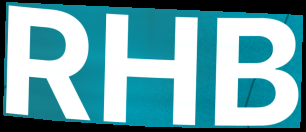
RHB